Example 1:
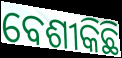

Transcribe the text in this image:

ବେଶୀକିଛି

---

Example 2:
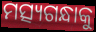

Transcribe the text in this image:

ମତ୍ସ୍ୟଗନ୍ଧାକୁ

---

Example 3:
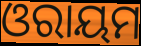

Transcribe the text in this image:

ଓରାୟମ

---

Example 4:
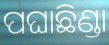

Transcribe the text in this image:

ପଘାଛିଣ୍ଡା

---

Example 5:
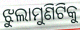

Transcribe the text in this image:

ଝୁଲାମୁଣିଟିକୁ